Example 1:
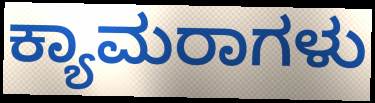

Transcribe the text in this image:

ಕ್ಯಾಮರಾಗಳು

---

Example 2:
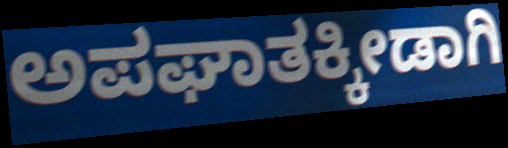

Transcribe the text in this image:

ಅಪಘಾತಕ್ಕೀಡಾಗಿ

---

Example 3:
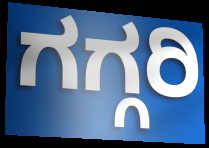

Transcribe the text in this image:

ಗಗ್ಗರಿ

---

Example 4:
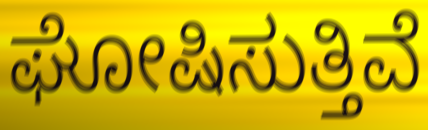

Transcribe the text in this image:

ಘೋಷಿಸುತ್ತಿವೆ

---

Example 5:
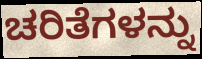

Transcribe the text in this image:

ಚರಿತೆಗಳನ್ನು